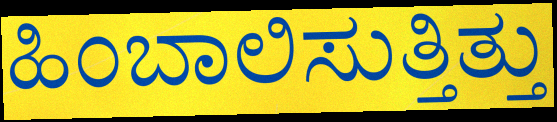
ಹಿಂಬಾಲಿಸುತ್ತಿತ್ತು